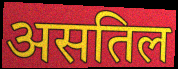
असतिल